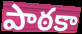
పాఠకా